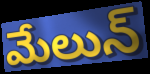
మేలున్